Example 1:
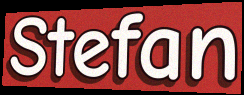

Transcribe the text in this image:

Stefan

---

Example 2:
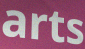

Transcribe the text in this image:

arts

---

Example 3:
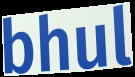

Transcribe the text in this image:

bhul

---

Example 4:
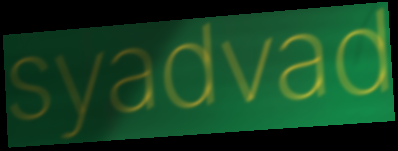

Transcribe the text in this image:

syadvad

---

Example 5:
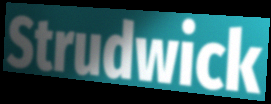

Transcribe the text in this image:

Strudwick